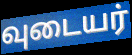
வுடையர்